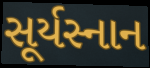
સૂર્યસ્નાન